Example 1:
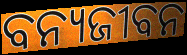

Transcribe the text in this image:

ବନ୍ୟଜୀବନ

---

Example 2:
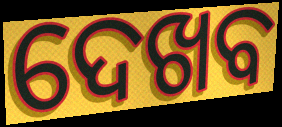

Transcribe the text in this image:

ଦେଖବ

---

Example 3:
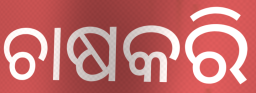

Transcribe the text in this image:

ଚାଷକରି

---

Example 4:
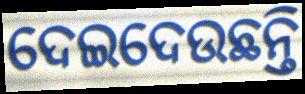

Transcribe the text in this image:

ଦେଇଦେଉଛନ୍ତି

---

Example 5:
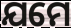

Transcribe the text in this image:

ଯମେ